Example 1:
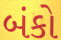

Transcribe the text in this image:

બંકો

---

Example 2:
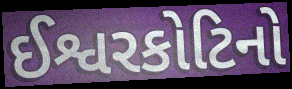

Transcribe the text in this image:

ઈશ્વરકોટિનો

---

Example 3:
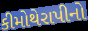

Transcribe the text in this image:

કીમોથેરાપીનો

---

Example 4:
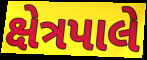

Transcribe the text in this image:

ક્ષેત્રપાલે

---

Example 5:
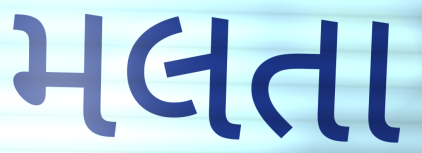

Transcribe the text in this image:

મલતા